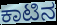
ಕಾಟಿನ